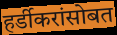
हर्डीकरांसोबत